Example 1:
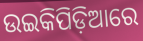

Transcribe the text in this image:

ଉଇକିପିଡ଼ିଆରେ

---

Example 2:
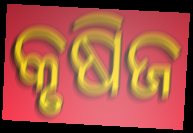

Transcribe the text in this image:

କୃଷିଜ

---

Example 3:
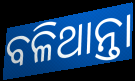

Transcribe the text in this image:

ବଳିଥାନ୍ତା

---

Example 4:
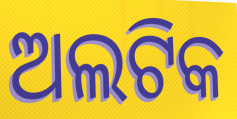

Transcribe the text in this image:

ଅଲଟିକ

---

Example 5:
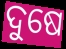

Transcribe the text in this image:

ଦୁଷେ